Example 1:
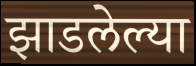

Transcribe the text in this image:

झाडलेल्या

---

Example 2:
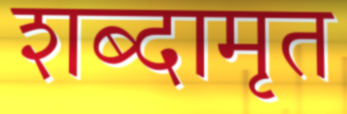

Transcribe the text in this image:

शब्दामृत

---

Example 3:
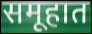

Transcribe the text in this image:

समूहात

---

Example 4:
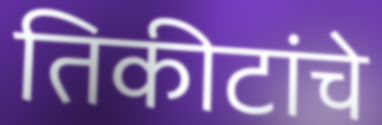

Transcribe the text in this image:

तिकीटांचे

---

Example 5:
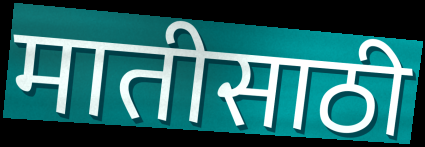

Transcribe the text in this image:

मातीसाठी